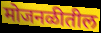
मोजनळीतील